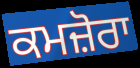
ਕਮਜ਼ੋਰਾ